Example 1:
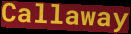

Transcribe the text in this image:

Callaway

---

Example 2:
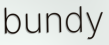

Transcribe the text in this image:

bundy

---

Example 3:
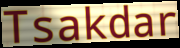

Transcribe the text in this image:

Tsakdar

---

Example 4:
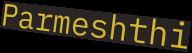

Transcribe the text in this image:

Parmeshthi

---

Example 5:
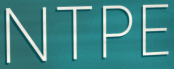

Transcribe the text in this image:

NTPE